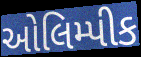
ઓલિમ્પીક